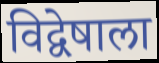
विद्वेषाला